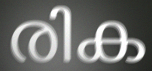
രിക